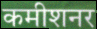
कमीशनर